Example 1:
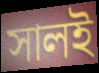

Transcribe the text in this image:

সালই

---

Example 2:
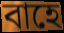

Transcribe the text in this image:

বাহে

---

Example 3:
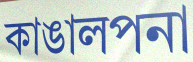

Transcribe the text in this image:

কাঙালপনা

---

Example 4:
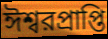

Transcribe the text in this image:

ঈশ্বরপ্রাপ্তি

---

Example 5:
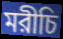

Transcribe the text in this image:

মরীচি